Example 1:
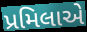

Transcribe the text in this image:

પ્રમિલાએ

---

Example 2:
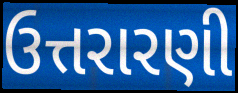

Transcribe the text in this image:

ઉત્તરારણી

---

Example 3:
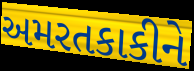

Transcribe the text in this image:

અમરતકાકીને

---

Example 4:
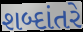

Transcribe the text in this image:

શબ્દાંતરે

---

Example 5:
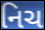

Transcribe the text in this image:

નિચ